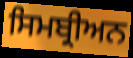
ਸਿਮਬ੍ਰੀਅਨ